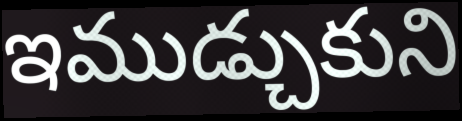
ఇముడ్చుకుని